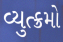
વ્યુત્ક્રમો